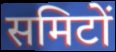
समिटों